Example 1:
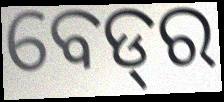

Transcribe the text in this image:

ବେଡ୍‍ର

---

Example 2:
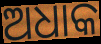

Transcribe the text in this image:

ଅଧାକ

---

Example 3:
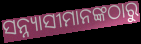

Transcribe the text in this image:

ସନ୍ନ୍ୟାସୀମାନଙ୍କଠାରୁ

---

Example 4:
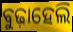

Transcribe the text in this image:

ବୁଢ଼ାହେଲି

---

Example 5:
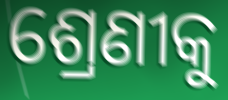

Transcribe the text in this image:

ଶ୍ରେଣୀକୁ